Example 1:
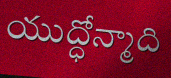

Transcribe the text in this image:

యుద్ధోన్మాది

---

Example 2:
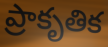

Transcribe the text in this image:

ప్రాకృతిక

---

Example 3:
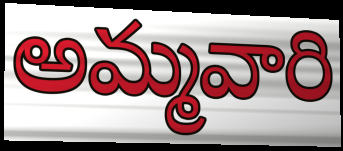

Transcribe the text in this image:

అమ్మవారి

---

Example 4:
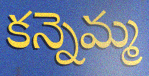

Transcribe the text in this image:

కన్నెమ్మ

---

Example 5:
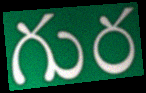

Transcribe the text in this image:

గుర